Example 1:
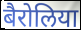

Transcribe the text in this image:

बैरोलिया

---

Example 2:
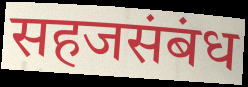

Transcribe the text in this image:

सहजसंबंध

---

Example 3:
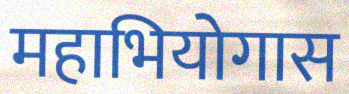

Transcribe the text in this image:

महाभियोगास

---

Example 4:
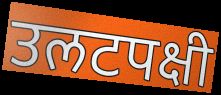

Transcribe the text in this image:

उलटपक्षी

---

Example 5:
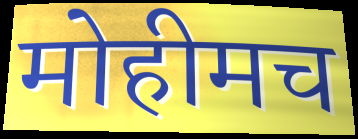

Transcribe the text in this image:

मोहीमच